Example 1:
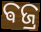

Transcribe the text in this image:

ଵଜ୍ର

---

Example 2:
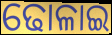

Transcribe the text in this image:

ଢୋଳାଇ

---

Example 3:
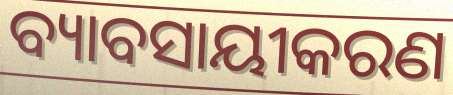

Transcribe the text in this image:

ବ୍ୟାବସାୟୀକରଣ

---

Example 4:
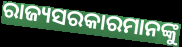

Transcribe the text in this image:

ରାଜ୍ୟସରକାରମାନଙ୍କୁ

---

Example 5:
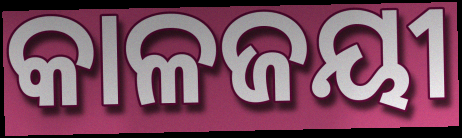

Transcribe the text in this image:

କାଳଜୟୀ